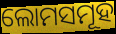
ଲୋମସମୂହ